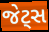
જેટ્સ